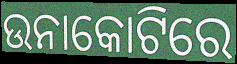
ଉନାକୋଟିରେ